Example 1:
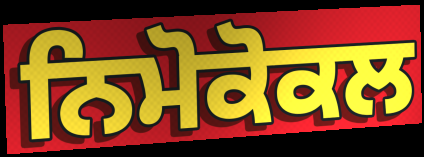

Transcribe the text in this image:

ਨਿਮੋਕੋਕਲ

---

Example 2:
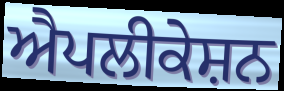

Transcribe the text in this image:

ਐਪਲੀਕੇਸ਼ਨ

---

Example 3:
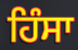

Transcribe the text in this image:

ਹਿੰਸਾ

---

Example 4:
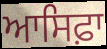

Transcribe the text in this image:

ਆਸਿਫ਼ਾ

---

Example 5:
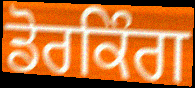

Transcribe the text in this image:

ਡੋਰਕਿੰਗ